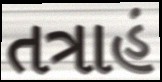
તત્રાહં